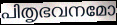
പിതൃഭവനമോ